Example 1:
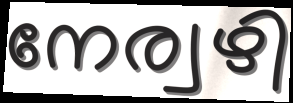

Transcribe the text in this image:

നേര്വഴി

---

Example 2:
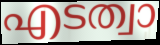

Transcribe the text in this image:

എടത്വാ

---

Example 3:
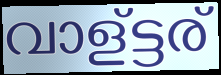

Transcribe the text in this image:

വാള്ട്ടര്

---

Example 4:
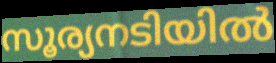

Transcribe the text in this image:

സൂര്യനടിയിൽ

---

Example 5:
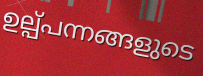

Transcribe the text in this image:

ഉല്പ്പന്നങ്ങളുടെ